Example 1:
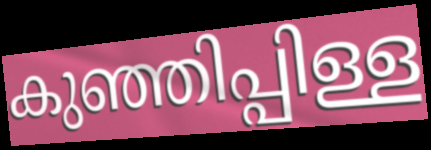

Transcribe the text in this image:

കുഞ്ഞിപ്പിള്ള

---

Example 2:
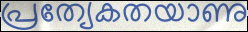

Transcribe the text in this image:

പ്രത്യേകതയാണു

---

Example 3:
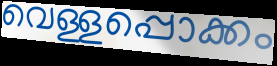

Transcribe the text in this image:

വെള്ളപ്പൊക്കം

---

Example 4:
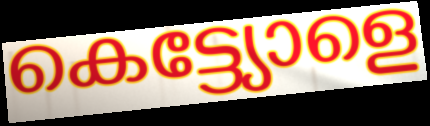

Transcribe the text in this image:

കെട്ട്യോളെ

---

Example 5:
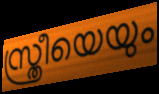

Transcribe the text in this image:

സ്ത്രീയെയും